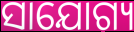
ସାଯୋଗ୍ୟ